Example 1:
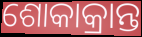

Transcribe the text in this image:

ଶୋକାକ୍ରାନ୍ତ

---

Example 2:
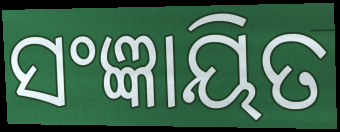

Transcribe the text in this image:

ସଂଜ୍ଞାୟିତ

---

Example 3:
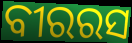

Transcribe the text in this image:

ବୀରରସ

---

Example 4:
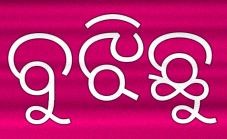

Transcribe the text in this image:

ବୁଝିଛୁ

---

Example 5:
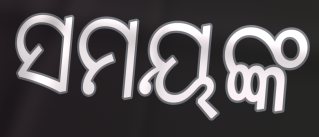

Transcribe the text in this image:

ସମୟଙ୍କ